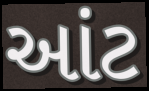
આંટ